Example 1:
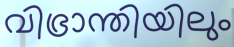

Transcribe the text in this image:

വിഭ്രാന്തിയിലും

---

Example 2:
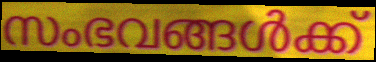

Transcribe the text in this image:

സംഭവങ്ങൾക്ക്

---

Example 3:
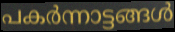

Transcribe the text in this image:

പകർന്നാട്ടങ്ങൾ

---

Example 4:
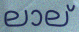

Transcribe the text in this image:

ലാല്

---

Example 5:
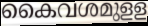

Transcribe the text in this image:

കൈവശമുളള